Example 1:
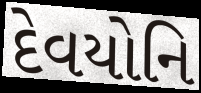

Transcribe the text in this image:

દેવયોનિ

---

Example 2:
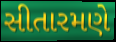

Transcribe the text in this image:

સીતારમણે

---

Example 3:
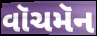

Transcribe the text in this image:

વૉચમૅન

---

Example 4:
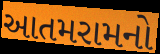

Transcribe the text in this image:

આતમરામનો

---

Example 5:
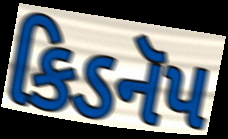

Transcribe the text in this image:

કિડનૅપ